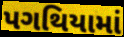
પગથિયામાં